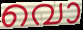
വൊ